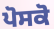
ਪੋਸਕੋ